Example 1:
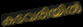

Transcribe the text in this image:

കടവരിയിൽ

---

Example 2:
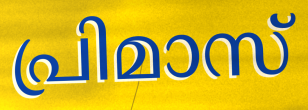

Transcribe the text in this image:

പ്രിമാസ്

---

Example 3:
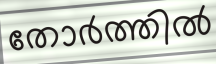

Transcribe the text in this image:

തോർത്തിൽ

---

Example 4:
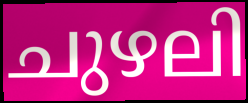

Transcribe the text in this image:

ചുഴലി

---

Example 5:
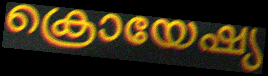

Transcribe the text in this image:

ക്രൊയേഷ്യ